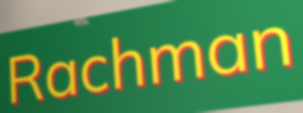
Rachman